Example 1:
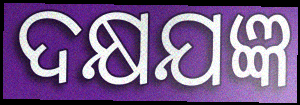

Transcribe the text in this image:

ଦକ୍ଷଯଜ୍ଞ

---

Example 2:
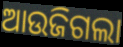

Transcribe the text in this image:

ଆଉଜିଗଲା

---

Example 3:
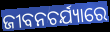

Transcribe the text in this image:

ଜୀବନଚର୍ଯ୍ୟାରେ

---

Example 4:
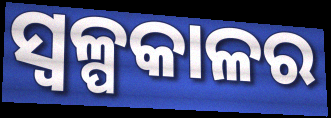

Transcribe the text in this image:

ସ୍ୱଳ୍ପକାଳର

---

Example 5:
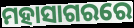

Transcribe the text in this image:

ମହାସାଗରରେ